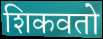
शिकवतो